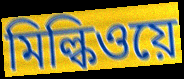
মিল্কিওয়ে